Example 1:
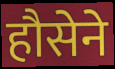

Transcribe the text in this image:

हौसेने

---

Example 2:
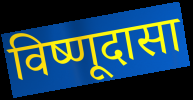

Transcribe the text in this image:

विष्णूदासा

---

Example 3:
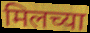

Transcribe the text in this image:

मिलच्या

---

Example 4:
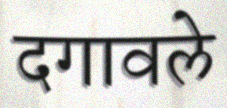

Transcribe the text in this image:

दगावले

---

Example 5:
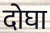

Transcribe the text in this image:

दोघा